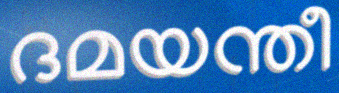
ദമയന്തീ